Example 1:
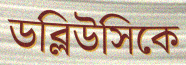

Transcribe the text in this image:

ডব্লিউসিকে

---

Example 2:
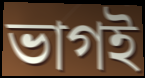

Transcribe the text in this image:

ভাগই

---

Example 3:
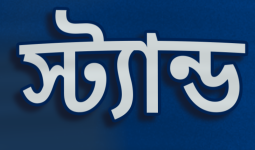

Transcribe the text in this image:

স্ট্যান্ড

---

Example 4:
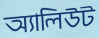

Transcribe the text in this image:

অ্যালিউট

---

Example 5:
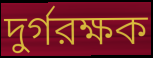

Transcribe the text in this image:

দুর্গরক্ষক